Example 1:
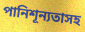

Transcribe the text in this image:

পানিশূন্যতাসহ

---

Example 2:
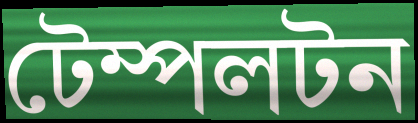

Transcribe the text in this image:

টেম্পলটন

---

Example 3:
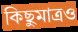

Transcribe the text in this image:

কিছুমাত্রও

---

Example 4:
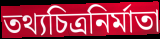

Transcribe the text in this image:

তথ্যচিত্রনির্মাতা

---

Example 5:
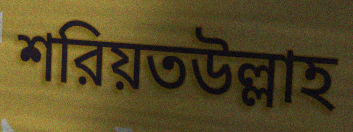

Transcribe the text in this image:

শরিয়তউল্লাহ